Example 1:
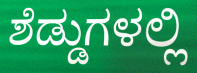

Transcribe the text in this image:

ಶೆಡ್ಡುಗಳಲ್ಲಿ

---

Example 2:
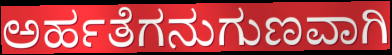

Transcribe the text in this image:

ಅರ್ಹತೆಗನುಗುಣವಾಗಿ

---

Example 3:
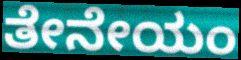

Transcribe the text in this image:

ತೇನೇಯಂ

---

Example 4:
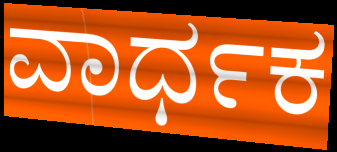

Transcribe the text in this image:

ವಾರ್ಧಕ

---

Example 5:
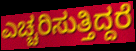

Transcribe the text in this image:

ಎಚ್ಚರಿಸುತ್ತಿದ್ದರೆ